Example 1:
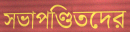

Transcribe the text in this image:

সভাপণ্ডিতদের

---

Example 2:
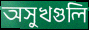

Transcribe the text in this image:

অসুখগুলি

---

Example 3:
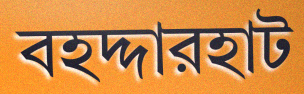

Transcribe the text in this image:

বহদ্দারহাট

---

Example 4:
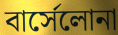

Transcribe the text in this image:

বার্সেলোনা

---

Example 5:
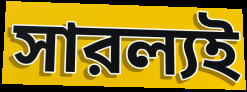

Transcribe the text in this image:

সারল্যই